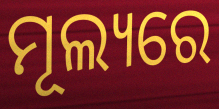
ମୂଲ୍ଯରେ